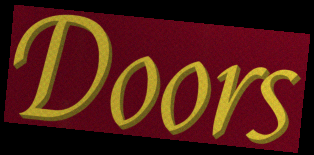
Doors